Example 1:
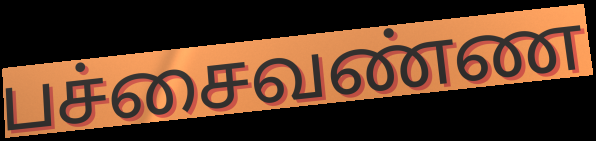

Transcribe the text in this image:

பச்சைவண்ண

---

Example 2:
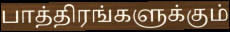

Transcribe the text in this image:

பாத்திரங்களுக்கும்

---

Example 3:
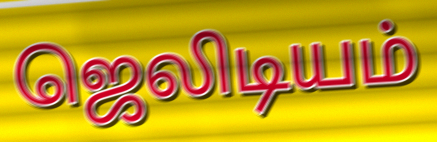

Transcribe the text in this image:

ஜெலிடியம்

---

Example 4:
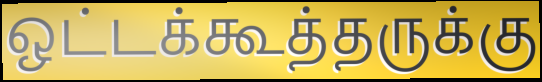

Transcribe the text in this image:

ஒட்டக்கூத்தருக்கு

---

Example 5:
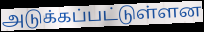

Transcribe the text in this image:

அடுக்கப்பட்டுள்ளன